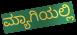
ಮ್ಯಾಗಿಯಲ್ಲಿ